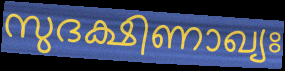
സുദക്ഷിണാഖ്യഃ